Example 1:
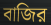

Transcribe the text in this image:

বাজির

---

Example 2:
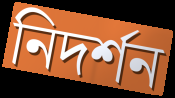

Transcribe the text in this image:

নিদর্শন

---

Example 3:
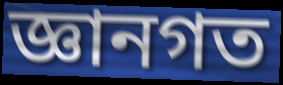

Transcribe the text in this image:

জ্ঞানগত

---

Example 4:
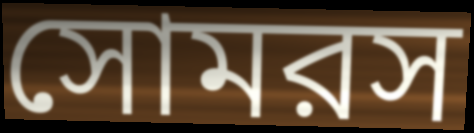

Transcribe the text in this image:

সোমরস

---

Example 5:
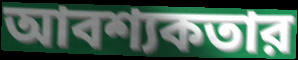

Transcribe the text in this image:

আবশ্যকতার